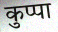
कुप्पा